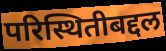
परिस्थितीबद्दल